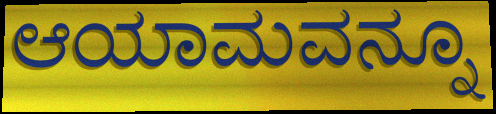
ಆಯಾಮವನ್ನೂ